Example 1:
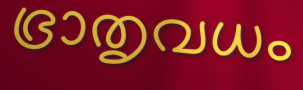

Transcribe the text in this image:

ഭ്രാതൃവധം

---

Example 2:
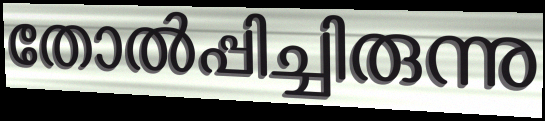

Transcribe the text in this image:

തോൽപ്പിച്ചിരുന്നു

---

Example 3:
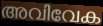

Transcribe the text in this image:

അവിവേക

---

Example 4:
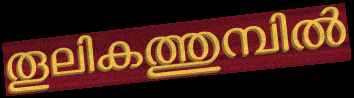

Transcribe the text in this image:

തൂലികത്തുമ്പിൽ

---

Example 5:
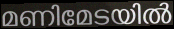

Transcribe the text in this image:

മണിമേടയിൽ